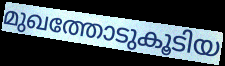
മുഖത്തോടുകൂടിയ